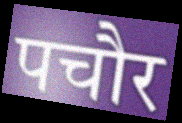
पचौर